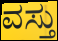
ವಸ್ತು